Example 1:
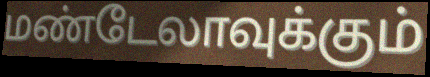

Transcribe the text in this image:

மண்டேலாவுக்கும்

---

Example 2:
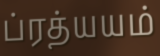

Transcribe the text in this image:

ப்ரத்யயம்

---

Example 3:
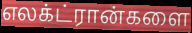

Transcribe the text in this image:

எலக்ட்ரான்களை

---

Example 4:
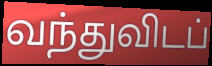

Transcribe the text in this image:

வந்துவிடப்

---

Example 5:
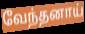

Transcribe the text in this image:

வேந்தனாய்